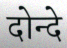
दोन्दे